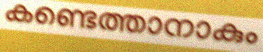
കണ്ടെത്താനാകും